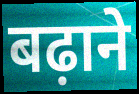
बढ़ाने